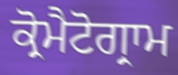
ਕ੍ਰੋਮੈਟੋਗ੍ਰਾਮ